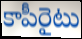
కాపీరైటు